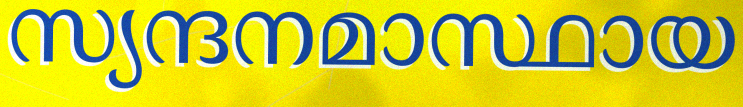
സ്യന്ദനമാസ്ഥായ